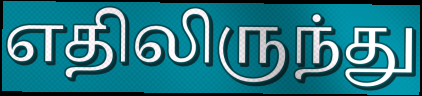
எதிலிருந்து